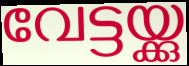
വേട്ടയ്ക്കു